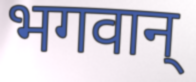
भगवान्